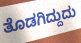
ತೊಡಗಿದ್ದುದು